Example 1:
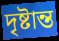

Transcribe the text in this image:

দৃষ্টান্ত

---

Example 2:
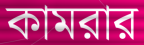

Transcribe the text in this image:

কামরার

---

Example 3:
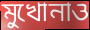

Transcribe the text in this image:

মুখোনাও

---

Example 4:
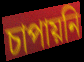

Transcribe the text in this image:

চাপায়নি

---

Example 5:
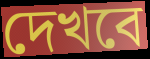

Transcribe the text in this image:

দেখবে